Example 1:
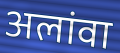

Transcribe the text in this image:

अलांवा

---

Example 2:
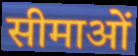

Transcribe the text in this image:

सीमाओं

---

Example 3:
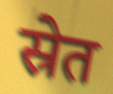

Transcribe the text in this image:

स्रेत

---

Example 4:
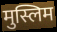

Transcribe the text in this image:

मुस्लिम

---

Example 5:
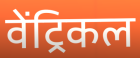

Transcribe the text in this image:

वेंट्रिकल